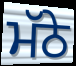
ਮੱਠੇ